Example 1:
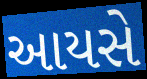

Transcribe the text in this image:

આયસે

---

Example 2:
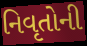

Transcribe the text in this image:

નિવૃતોની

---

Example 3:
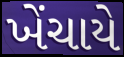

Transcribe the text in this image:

ખેંચાયે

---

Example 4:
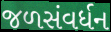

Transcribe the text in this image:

જળસંવર્ધન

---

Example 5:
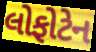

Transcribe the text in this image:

લોફોટેન